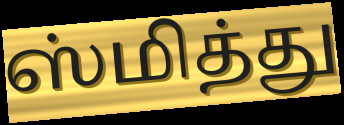
ஸ்மித்து